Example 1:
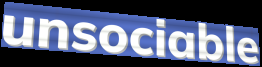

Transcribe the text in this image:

unsociable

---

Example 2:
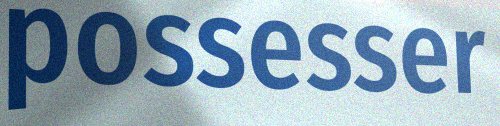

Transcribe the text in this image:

possesser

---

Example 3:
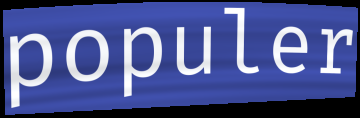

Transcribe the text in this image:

populer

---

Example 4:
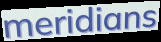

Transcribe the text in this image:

meridians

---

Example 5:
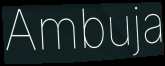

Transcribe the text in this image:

Ambuja